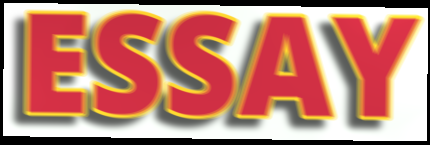
ESSAY